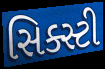
સિક્સ્ટી